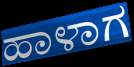
ಹಾಳಾಗ